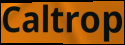
Caltrop